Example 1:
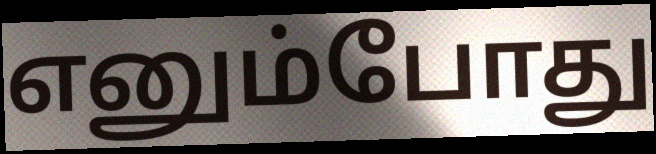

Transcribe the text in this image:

எனும்போது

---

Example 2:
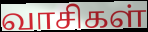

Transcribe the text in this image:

வாசிகள்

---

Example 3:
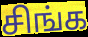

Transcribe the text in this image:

சிங்க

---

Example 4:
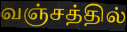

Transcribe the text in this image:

வஞ்சத்தில்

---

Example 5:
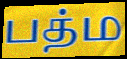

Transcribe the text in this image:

பத்ம